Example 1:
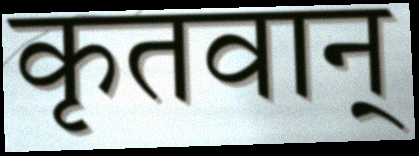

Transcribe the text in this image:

कृतवान्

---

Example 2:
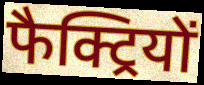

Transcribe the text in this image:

फैक्ट्रियों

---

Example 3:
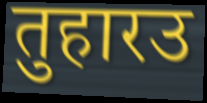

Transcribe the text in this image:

तुहारउ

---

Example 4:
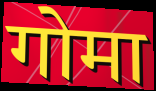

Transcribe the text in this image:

गोमा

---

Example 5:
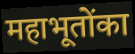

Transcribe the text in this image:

महाभूतोंका